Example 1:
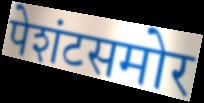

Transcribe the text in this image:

पेशंटसमोर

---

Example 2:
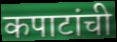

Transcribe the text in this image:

कपाटांची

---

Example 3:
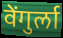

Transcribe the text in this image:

वेंगुर्ला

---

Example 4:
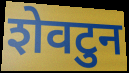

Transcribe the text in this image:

शेवटुन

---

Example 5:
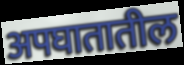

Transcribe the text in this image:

अपघातातील